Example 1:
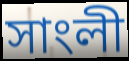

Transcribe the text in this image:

সাংলী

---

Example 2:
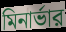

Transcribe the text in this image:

মিনার্ভার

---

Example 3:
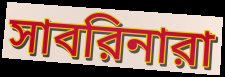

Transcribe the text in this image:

সাবরিনারা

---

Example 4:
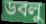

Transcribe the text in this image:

ডবলু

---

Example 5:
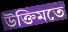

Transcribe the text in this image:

উক্তিমতে